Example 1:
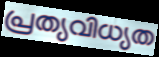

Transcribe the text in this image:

പ്രത്യവിധ്യത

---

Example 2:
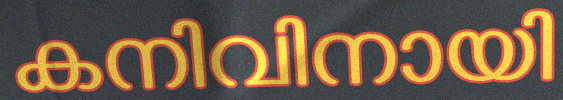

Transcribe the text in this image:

കനിവിനായി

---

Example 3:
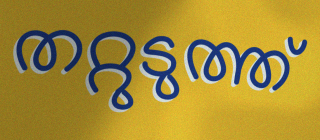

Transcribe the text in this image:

തറ്റുടുത്ത്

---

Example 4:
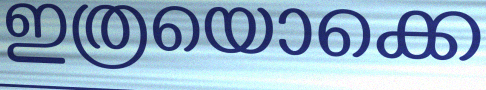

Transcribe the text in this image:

ഇത്രയൊക്കെ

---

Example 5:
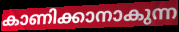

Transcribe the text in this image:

കാണിക്കാനാകുന്ന